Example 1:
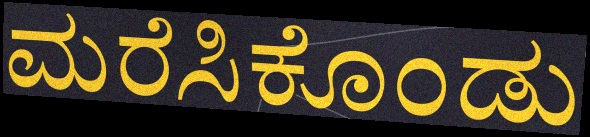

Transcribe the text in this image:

ಮರೆಸಿಕೊಂಡು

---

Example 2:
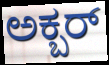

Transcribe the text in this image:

ಅಕ್ಬರ್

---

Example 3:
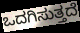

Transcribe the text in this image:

ಒದಗಿಸುತ್ತದೆ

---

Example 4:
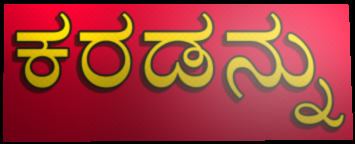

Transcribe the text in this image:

ಕರಡನ್ನು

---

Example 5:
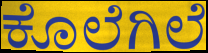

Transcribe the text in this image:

ಕೊಲೆಗಿಲೆ